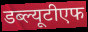
डब्ल्यूटीएफ